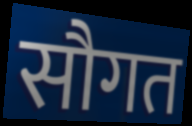
सौगत